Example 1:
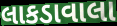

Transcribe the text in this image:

લાકડાવાલા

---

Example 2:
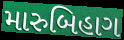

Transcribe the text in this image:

મારુબિહાગ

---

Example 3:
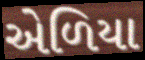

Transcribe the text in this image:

એળિયા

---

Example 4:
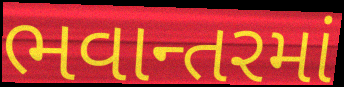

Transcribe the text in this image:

ભવાન્તરમાં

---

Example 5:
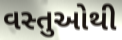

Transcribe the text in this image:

વસ્તુઓથી